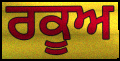
ਰਕੂਅ